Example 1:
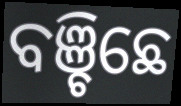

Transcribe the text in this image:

ବଞ୍ଚିଛେ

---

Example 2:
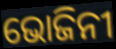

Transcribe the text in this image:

ଭୋଜିନୀ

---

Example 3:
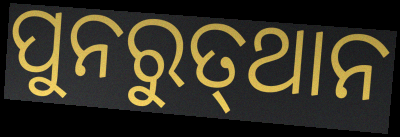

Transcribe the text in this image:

ପୁନରୁତ୍‌ଥାନ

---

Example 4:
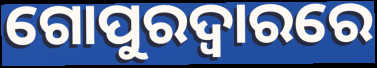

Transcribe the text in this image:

ଗୋପୁରଦ୍ବାରରେ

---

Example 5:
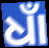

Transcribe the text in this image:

ଧାଁ